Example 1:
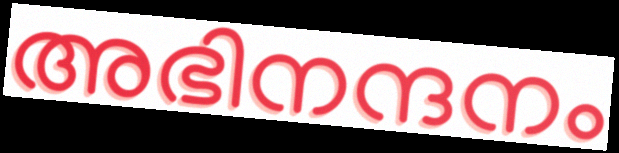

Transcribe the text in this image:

അഭിനന്ദനം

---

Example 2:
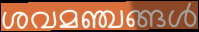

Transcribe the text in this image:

ശവമഞ്ചങ്ങൾ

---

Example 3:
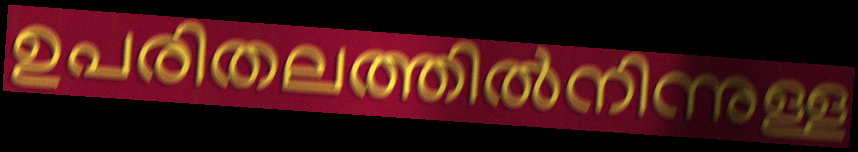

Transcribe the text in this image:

ഉപരിതലത്തിൽനിന്നുള്ള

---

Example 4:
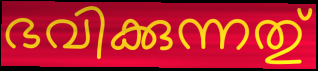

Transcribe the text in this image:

ഭവിക്കുന്നതു്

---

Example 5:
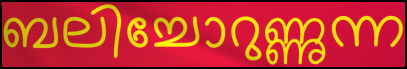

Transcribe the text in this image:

ബലിച്ചോറുണ്ണുന്ന